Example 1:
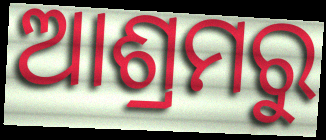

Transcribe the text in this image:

ଆଶ୍ରମରୁ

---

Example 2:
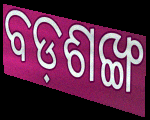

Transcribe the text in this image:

ବଡ଼ଶଙ୍ଖ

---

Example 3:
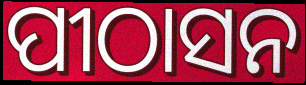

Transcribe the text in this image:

ପୀଠାସନ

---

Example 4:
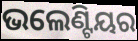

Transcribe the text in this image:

ଭଲେଣ୍ଟିୟର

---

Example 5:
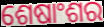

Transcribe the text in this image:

ଶେଷାଂଶର